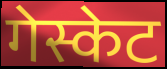
गेस्केट